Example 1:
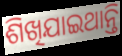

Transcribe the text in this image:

ଶିଖିଯାଇଥାନ୍ତି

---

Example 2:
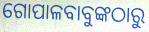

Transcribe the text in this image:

ଗୋପାଳବାବୁଙ୍କଠାରୁ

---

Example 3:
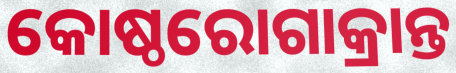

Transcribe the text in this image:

କୋଷ୍ଠରୋଗାକ୍ରାନ୍ତ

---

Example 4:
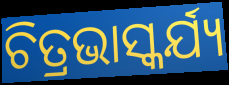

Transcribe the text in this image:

ଚିତ୍ରଭାସ୍କର୍ଯ୍ୟ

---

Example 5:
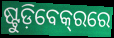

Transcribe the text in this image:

ଷ୍ଟୁଡ଼ିବେକ୍‌ରରେ